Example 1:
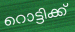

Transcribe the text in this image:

റൊട്ടിക്ക്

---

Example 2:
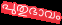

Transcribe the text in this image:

പുതുഭാവം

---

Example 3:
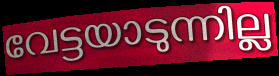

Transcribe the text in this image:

വേട്ടയാടുന്നില്ല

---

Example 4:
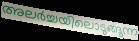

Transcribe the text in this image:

അലർച്ചയിലൊടുങ്ങുന്ന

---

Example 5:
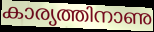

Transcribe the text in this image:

കാര്യത്തിനാണു